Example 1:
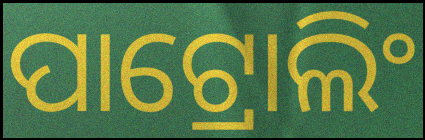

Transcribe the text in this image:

ପାଟ୍ରୋଲିଂ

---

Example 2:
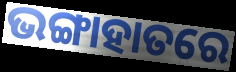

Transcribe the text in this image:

ଭଙ୍ଗାହାତରେ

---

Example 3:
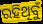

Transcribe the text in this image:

ରହିଥିବୁଁ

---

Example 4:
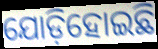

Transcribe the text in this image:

ଯୋଡ଼ିହୋଇଛି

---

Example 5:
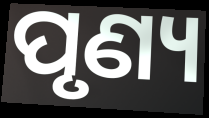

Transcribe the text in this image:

ପୃଣ୍ୟ